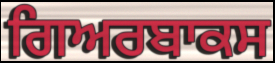
ਗਿਅਰਬਾਕਸ